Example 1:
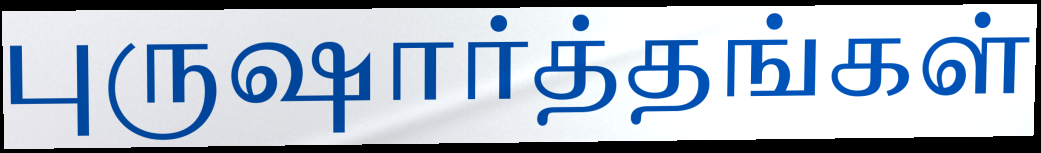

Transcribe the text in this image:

புருஷார்த்தங்கள்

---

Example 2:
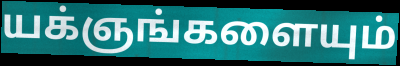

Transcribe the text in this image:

யக்ஞங்களையும்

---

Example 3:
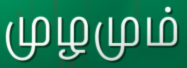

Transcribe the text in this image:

முழமும்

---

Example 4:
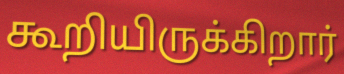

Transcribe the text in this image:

கூறியிருக்கிறார்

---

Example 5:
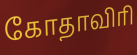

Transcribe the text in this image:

கோதாவிரி